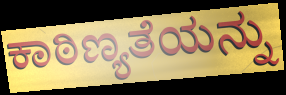
ಕಾಠಿಣ್ಯತೆಯನ್ನು